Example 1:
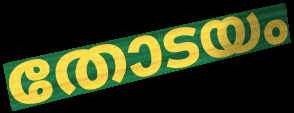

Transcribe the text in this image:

തോടയം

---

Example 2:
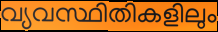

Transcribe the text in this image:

വ്യവസ്ഥിതികളിലും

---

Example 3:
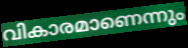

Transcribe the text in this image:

വികാരമാണെന്നും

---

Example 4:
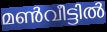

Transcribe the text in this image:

മൺവീട്ടിൽ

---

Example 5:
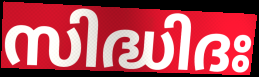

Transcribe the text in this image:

സിദ്ധിദഃ